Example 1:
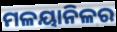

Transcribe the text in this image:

ମଳୟାନିଳର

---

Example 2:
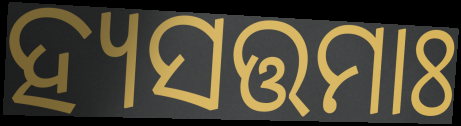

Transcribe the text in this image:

ହ୍ୟସତ୍ତମାଃ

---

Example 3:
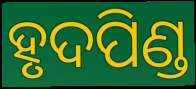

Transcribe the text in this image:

ହୃଦପିଣ୍ଡ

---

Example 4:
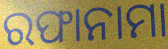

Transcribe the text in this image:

ରଫାନାମା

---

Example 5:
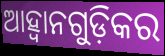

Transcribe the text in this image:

ଆହ୍ୱାନଗୁଡ଼ିକର